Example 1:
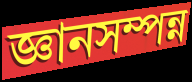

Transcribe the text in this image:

জ্ঞানসম্পন্ন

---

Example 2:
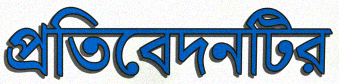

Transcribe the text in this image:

প্রতিবেদনটির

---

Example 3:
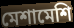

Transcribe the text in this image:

মেশামেশি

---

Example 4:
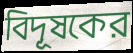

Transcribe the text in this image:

বিদূষকের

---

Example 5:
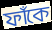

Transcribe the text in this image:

ফাঁকে